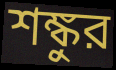
শঙ্কুর